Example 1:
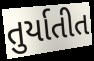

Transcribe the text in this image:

તુર્યાતીત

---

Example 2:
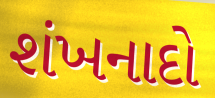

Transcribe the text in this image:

શંખનાદો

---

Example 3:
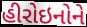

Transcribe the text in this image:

હીરોઇનોને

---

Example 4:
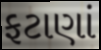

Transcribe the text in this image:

ફટાણાં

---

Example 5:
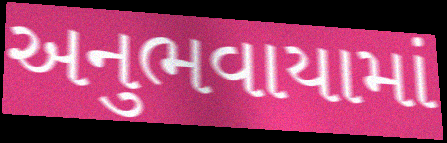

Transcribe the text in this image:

અનુભવાયામાં